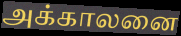
அக்காலனை